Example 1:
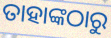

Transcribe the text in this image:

ତାହାଙ୍କଠାରୁ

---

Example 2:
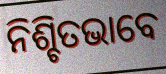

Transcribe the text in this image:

ନିଶ୍ଚିତଭାବେ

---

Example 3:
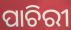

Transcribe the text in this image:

ପାଚିରୀ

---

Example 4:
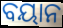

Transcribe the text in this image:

ବୟାନ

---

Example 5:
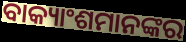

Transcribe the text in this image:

ବାକ୍ୟାଂଶମାନଙ୍କର